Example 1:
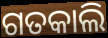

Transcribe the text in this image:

ଗତକାଲି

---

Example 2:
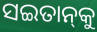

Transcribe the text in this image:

ସଇତାନ୍‌କୁ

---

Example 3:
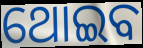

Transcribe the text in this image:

ଥୋଇବ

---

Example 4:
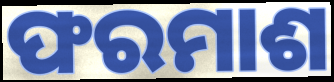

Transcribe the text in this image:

ଫରମାଶ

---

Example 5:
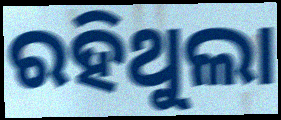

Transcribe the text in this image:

ରହିଥୁଲା